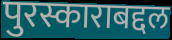
पुरस्काराबद्दल